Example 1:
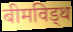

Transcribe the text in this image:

बीमविड्थ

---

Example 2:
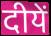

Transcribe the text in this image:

दीयें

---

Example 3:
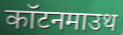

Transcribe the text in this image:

कॉटनमाउथ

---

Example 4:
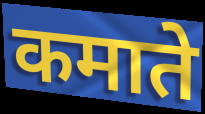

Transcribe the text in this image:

कमाते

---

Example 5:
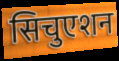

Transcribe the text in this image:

सिचुएशन